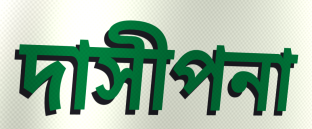
দাসীপনা